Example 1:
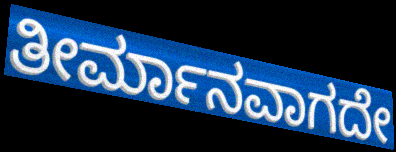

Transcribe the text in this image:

ತೀರ್ಮಾನವಾಗದೇ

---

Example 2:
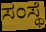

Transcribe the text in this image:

ಸಂಸ್ಥೆ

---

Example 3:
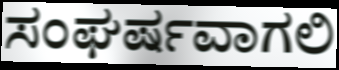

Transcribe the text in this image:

ಸಂಘರ್ಷವಾಗಲಿ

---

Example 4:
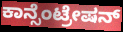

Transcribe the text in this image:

ಕಾನ್ಸೆಂಟ್ರೇಷನ್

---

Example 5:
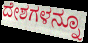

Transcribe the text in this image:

ದೇಶಗಳನ್ನೂ